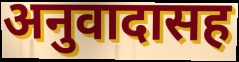
अनुवादासह